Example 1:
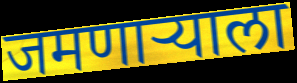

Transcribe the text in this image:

जमणाऱ्याला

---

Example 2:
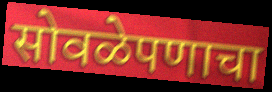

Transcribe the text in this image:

सोवळेपणाचा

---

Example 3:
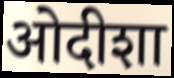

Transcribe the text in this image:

ओदीशा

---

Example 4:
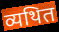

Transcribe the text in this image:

व्यथित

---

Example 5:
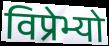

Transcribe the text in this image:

विप्रेभ्यो